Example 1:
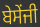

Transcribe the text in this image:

ਬੇਸੇਂਜੀ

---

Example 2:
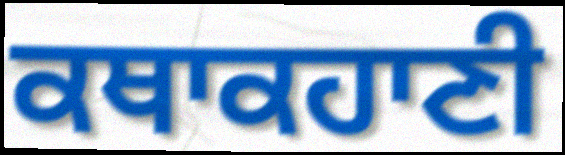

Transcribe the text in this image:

ਕਥਾਕਹਾਣੀ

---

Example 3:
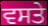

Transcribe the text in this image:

ਵਸਤੇ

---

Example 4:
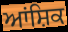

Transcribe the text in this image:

ਆਂਸ਼ਿਕ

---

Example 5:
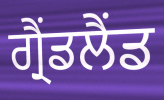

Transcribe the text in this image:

ਗ੍ਰੈਂਡਲੈਂਡ